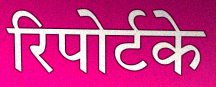
रिपोर्टके